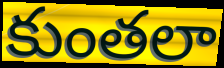
కుంతలా